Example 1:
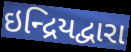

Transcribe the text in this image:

ઇન્દ્રિયદ્વારા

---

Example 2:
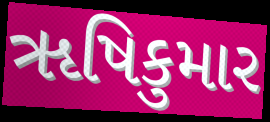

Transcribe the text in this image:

ૠષિકુમાર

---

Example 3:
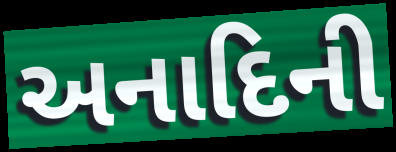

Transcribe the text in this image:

અનાદિની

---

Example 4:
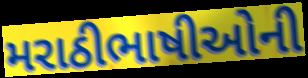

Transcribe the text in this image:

મરાઠીભાષીઓની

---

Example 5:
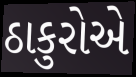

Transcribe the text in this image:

ઠાકુરોએ